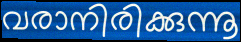
വരാനിരിക്കുന്നൂ